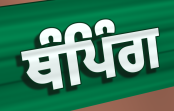
ਥੰਪਿੰਗ